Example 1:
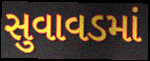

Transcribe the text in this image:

સુવાવડમાં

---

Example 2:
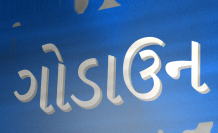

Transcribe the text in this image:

ગોડાઉન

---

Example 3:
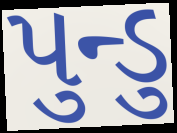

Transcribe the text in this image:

પુન્ડુ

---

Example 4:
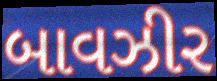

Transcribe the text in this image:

બાવઝીર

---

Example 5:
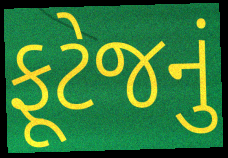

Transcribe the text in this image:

ફૂટેજનું